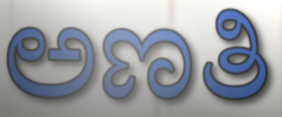
ಅಣತಿ